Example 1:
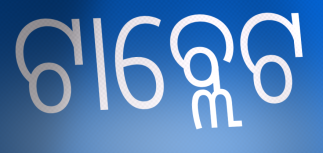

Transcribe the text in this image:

ଟାବ୍ଲେଟ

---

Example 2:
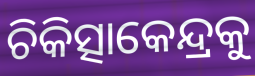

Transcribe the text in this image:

ଚିକିତ୍ସାକେନ୍ଦ୍ରକୁ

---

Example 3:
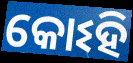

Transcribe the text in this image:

କୋଽହି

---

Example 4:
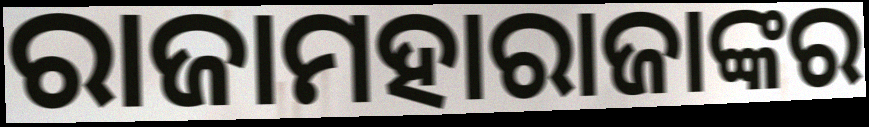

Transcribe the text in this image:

ରାଜାମହାରାଜାଙ୍କର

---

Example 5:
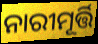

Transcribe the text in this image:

ନାରୀମୂର୍ତ୍ତି